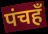
पंचहँ